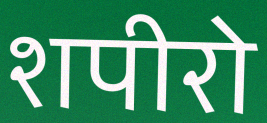
शपीरो